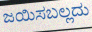
ಜಯಿಸಬಲ್ಲದು